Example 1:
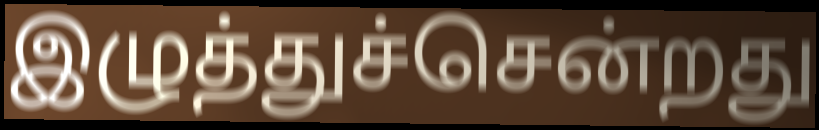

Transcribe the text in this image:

இழுத்துச்சென்றது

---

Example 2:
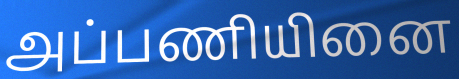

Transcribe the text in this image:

அப்பணியினை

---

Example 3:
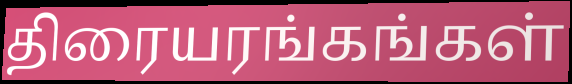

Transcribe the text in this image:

திரையரங்கங்கள்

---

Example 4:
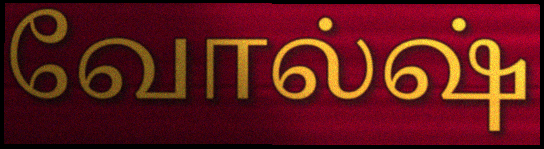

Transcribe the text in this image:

வோல்ஷ்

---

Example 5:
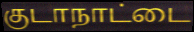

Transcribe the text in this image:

குடாநாட்டை